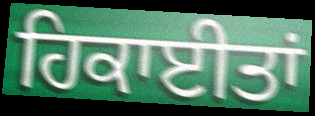
ਹਿਕਾਈਤਾਂ